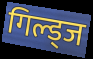
गिल्ड्ज